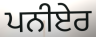
ਪਨੀਏਰ